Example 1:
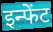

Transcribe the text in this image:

इन्फेंट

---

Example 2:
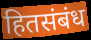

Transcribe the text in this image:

हितसंबंध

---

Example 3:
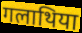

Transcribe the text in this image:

गलाथिया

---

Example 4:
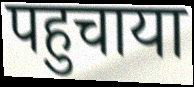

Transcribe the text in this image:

पहुचाया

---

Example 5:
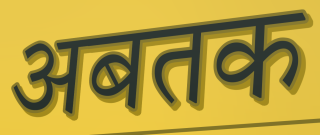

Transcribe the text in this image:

अबतक